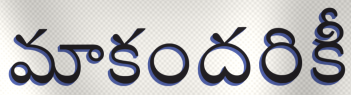
మాకందరికీ